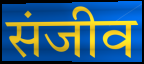
संजीव